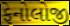
ફેનોલોજી